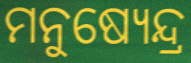
ମନୁଷ୍ୟେନ୍ଦ୍ର